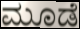
ಮೂಡೆ